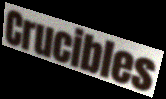
Crucibles